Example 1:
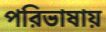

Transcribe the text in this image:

পরিভাষায়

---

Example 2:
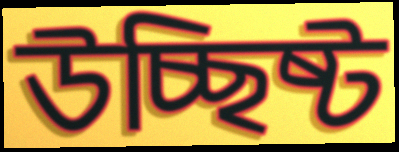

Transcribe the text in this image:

উচ্ছিষ্ট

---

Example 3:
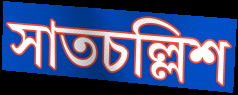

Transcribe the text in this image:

সাতচল্লিশ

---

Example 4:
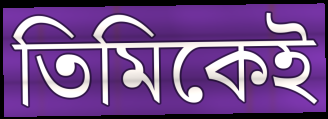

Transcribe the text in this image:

তিমিকেই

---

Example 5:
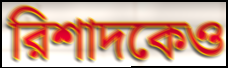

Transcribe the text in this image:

রিশাদকেও